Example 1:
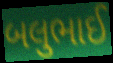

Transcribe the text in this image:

બલુભાઈ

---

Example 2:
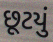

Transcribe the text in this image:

છૂટયું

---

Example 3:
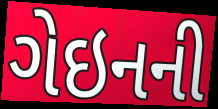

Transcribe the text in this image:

ગેઇનની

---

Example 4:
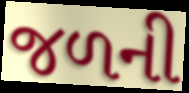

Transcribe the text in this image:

જળની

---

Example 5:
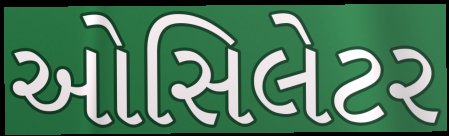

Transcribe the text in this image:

ઓસિલેટર